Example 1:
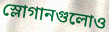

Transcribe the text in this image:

স্লোগানগুলোও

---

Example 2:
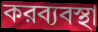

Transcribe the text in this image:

করব্যবস্থা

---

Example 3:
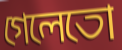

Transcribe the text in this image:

গেলেতো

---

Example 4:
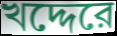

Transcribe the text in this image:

খদ্দেরে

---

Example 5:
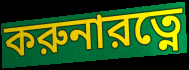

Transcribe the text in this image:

করুনারত্নে